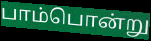
பாம்பொன்று